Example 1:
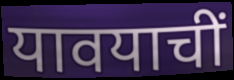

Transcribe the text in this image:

यावयाचीं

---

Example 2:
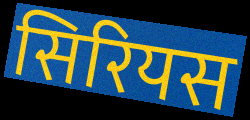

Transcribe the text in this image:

सिरियस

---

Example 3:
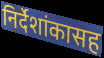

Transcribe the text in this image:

निर्देशांकासह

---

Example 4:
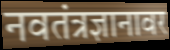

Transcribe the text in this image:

नवतंत्रज्ञानावर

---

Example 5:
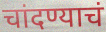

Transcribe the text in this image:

चांदण्याचं